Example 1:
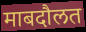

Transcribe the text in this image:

माबदौलत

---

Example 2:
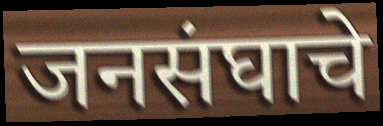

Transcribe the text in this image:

जनसंघाचे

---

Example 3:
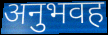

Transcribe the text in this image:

अनुभवह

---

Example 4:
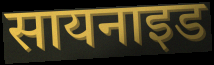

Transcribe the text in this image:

सायनाइड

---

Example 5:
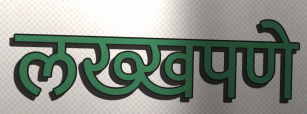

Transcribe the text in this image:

लख्खपणे